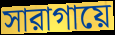
সারাগায়ে